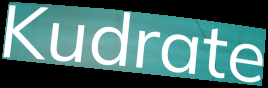
Kudrate